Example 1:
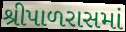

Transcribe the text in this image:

શ્રીપાળરાસમાં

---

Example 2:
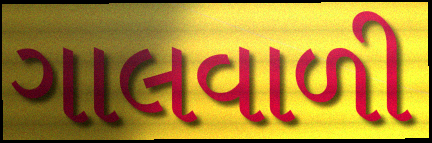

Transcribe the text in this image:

ગાલવાળી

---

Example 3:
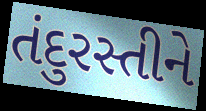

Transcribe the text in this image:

તંદુરસ્તીને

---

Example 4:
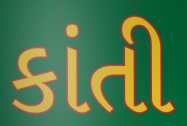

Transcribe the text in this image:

કાંતી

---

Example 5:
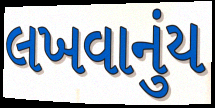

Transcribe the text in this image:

લખવાનુંય